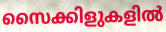
സൈക്കിളുകളിൽ